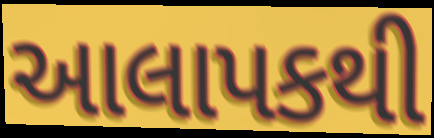
આલાપકથી